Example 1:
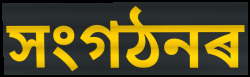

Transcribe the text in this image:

সংগঠনৰ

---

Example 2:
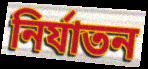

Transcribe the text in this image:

নিৰ্যাতন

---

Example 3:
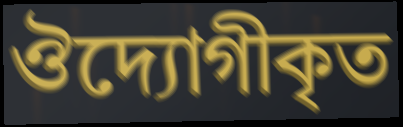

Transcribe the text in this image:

ঔদ্যোগীকৃত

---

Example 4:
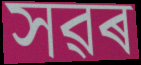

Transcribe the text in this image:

সৱৰ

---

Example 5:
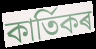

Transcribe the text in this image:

কাৰ্তিকৰ